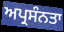
ਅਪ੍ਰਸੰਨਤਾ